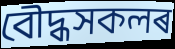
বৌদ্ধসকলৰ